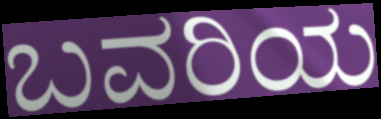
ಬವರಿಯ